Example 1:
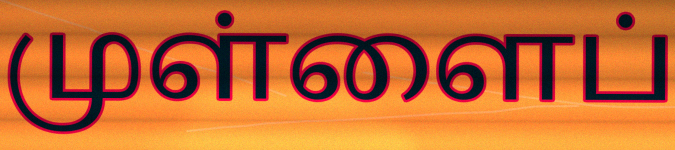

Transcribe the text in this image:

முள்ளைப்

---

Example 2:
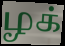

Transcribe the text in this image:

ழக்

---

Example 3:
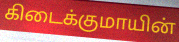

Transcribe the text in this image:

கிடைக்குமாயின்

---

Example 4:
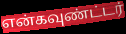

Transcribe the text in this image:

என்கவுண்ட்டர்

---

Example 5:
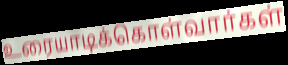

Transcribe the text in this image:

உரையாடிக்கொள்வார்கள்